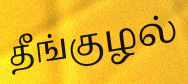
தீங்குழல்